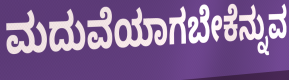
ಮದುವೆಯಾಗಬೇಕೆನ್ನುವ